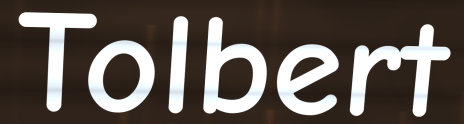
Tolbert